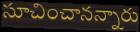
సూచించానన్నారు